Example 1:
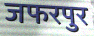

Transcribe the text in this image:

जफरपुर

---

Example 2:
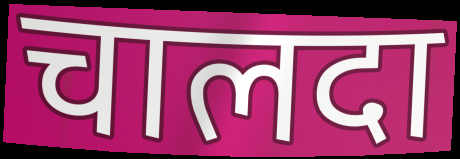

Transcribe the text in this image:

चालदा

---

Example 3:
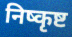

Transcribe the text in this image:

निष्कृष्ट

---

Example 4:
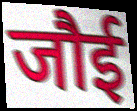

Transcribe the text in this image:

जौई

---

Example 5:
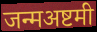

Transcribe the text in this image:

जन्मअष्टमी